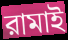
রামাই